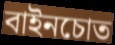
বাইনচোত